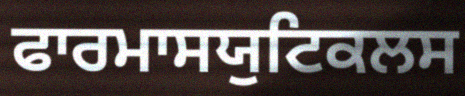
ਫਾਰਮਾਸਯੁਟਿਕਲਸ